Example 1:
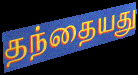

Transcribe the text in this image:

தந்தையது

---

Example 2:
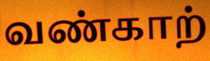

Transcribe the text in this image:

வண்காற்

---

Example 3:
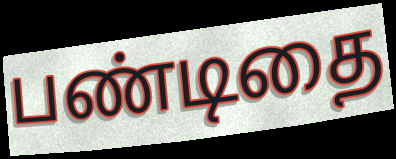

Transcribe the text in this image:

பண்டிதை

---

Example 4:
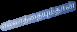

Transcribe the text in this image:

எல்லாத்தையும்தான்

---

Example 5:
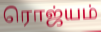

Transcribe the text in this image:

ரொஜ்யம்